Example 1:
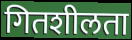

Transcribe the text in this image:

गितशीलता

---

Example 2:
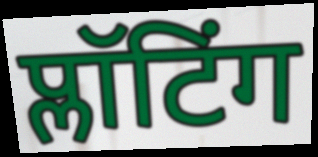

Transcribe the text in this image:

प्लॉटिंग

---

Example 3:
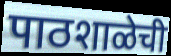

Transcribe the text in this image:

पाठशाळेची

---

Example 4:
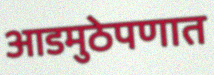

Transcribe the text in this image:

आडमुठेपणात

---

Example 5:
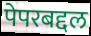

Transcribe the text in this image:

पेपरबद्दल